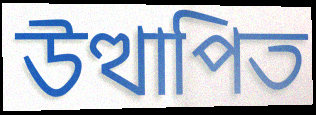
উত্থাপিত